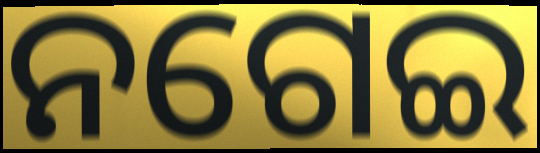
ନଗେଇ